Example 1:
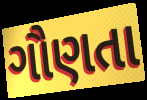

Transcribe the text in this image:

ગૌણતા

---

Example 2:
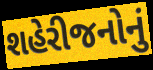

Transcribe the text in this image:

શહેરીજનોનું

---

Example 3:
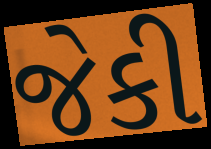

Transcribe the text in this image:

જેકી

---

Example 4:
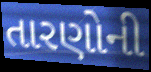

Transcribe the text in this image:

તારણોની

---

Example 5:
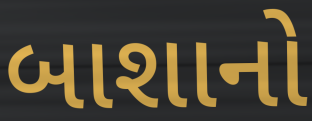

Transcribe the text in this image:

બાશાનો